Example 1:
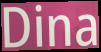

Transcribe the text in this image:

Dina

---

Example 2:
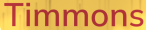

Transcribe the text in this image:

Timmons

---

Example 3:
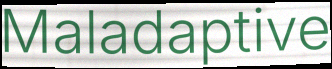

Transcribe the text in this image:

Maladaptive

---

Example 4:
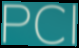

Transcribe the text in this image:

PCl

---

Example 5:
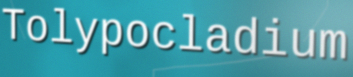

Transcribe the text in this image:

Tolypocladium